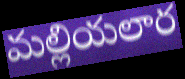
మల్లియలార